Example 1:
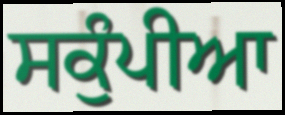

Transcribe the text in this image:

ਸਕੁੰਪੀਆ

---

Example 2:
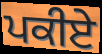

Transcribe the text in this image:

ਪਕੀਏ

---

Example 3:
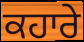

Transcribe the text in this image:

ਕਹਾਰੇ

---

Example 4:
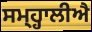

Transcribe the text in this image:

ਸਮ੍ਹ੍ਹਾਲੀਐ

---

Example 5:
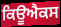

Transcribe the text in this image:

ਕਿਊਐਕਸ